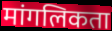
मांगलिकता